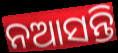
ନଆସନ୍ତି